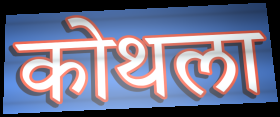
कोथला